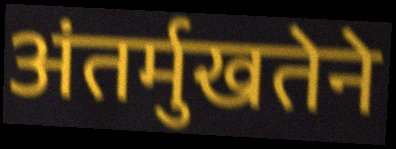
अंतर्मुखतेने